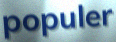
populer